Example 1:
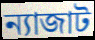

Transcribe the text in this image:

ন্যাজাট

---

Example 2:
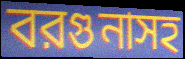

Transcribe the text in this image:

বরগুনাসহ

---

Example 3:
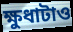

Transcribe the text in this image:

ক্ষুধাটাও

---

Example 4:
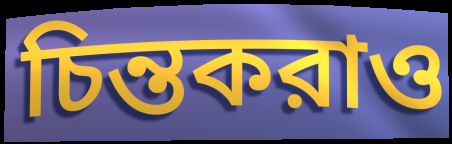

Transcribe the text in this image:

চিন্তকরাও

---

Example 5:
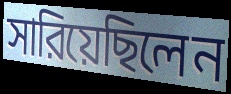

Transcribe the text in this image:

সারিয়েছিলেন